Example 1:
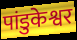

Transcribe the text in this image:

पांडुकेश्वर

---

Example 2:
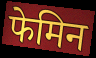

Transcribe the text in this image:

फेमिन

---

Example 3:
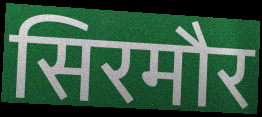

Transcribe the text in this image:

सिरमौर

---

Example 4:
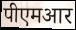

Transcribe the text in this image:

पीएमआर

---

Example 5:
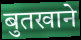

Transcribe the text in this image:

बुतखाने